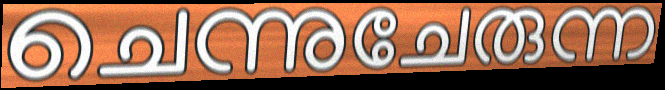
ചെന്നുചേരുന്ന